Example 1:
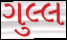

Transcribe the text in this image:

ગુલ્લ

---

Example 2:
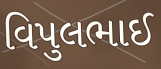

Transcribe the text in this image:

વિપુલભાઈ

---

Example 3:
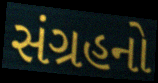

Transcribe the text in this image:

સંગ્રહનો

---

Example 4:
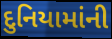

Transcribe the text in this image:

દુનિયામાંની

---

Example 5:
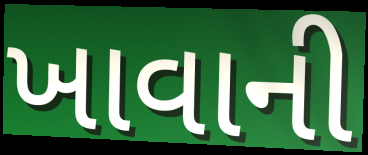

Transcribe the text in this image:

ખાવાની